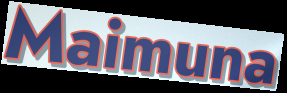
Maimuna